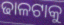
ଢାଳଟାକୁ